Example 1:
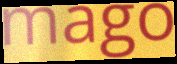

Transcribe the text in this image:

mago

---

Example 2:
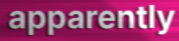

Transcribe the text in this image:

apparently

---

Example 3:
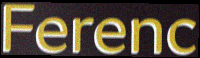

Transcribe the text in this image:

Ferenc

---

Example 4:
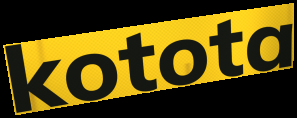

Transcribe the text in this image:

kotota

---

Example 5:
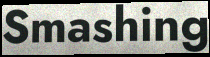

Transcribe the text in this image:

Smashing